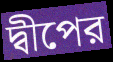
দ্বীপের